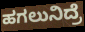
ಹಗಲುನಿದ್ರೆ